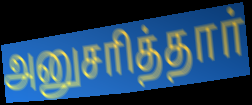
அனுசரித்தார்